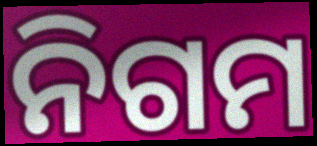
ନିଗମ